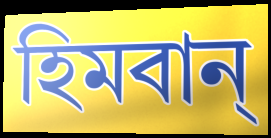
হিমবান্